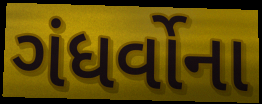
ગંધર્વોના